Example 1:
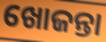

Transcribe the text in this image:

ଖୋଜନ୍ତା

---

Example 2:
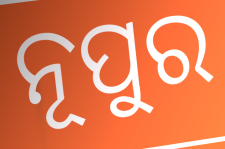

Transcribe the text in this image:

ନୂପୁର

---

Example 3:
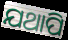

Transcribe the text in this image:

ଯଥାପି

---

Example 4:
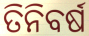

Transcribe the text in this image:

ତିନିବର୍ଷ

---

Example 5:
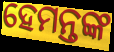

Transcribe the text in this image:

ହେମନ୍ତଙ୍କ